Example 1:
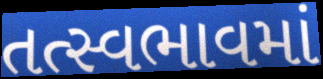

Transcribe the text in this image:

તત્સ્વભાવમાં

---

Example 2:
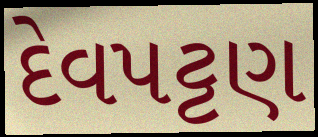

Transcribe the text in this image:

દેવપટ્ટણ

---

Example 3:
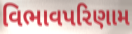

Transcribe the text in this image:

વિભાવપરિણામ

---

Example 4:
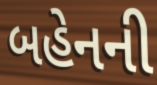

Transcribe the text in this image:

બહેનની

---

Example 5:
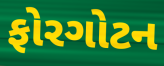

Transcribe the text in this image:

ફોરગોટન